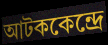
আটককেন্দ্রে